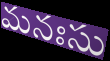
మనఃసు